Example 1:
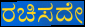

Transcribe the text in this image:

ರಚಿಸದೇ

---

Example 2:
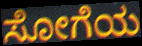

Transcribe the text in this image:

ಸೋಗೆಯ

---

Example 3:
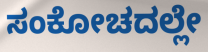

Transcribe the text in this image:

ಸಂಕೋಚದಲ್ಲೇ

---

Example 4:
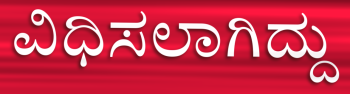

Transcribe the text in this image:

ವಿಧಿಸಲಾಗಿದ್ದು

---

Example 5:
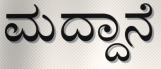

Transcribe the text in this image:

ಮದ್ದಾನೆ